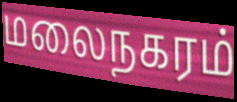
மலைநகரம்